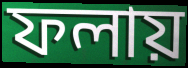
ফলায়